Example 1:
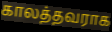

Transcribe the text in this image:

காலத்தவராக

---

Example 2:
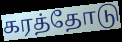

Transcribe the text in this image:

கரத்தோடு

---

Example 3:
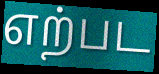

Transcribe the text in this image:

எற்பட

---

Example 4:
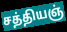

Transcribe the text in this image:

சத்தியஞ்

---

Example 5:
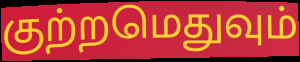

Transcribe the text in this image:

குற்றமெதுவும்